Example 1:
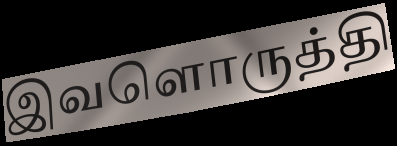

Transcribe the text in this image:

இவளொருத்தி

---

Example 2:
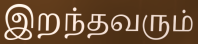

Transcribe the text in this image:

இறந்தவரும்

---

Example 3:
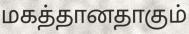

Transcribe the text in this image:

மகத்தானதாகும்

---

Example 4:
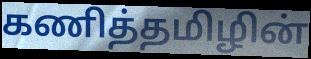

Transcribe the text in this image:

கணித்தமிழின்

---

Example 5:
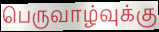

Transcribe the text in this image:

பெருவாழ்வுக்கு